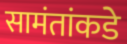
सामंतांकडे